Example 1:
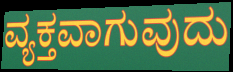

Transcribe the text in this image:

ವ್ಯಕ್ತವಾಗುವುದು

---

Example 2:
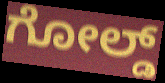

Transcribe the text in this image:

ಗೋಲ್ಡ್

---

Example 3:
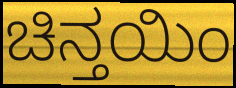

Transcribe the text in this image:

ಚಿನ್ತಯಿಂ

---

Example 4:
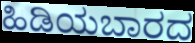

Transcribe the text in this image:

ಹಿಡಿಯಬಾರದ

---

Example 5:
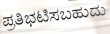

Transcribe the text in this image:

ಪ್ರತಿಭಟಿಸಬಹುದು